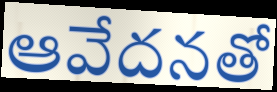
ఆవేదనతో